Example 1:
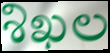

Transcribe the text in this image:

శిఖల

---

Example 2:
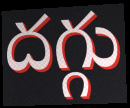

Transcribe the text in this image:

దగ్గు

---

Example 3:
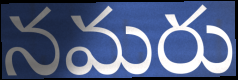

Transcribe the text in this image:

నమరు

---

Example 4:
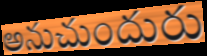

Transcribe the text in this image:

అనుచుందురు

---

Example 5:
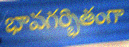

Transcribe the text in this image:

భావగర్భితంగా